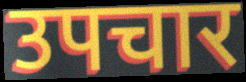
उपचार